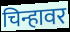
चिन्हावर